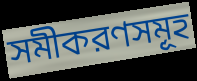
সমীকরণসমূহ